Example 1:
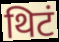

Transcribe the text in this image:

थिटं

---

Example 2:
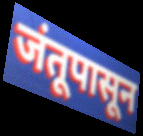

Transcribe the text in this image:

जंतूपासून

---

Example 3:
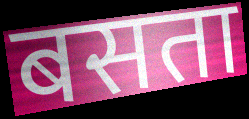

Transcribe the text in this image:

बसता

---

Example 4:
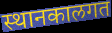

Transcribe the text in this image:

स्थानकालगत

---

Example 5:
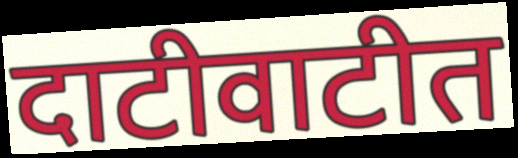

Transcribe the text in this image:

दाटीवाटीत